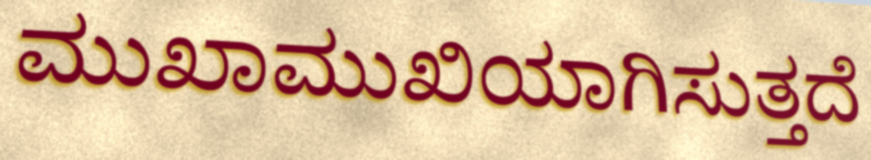
ಮುಖಾಮುಖಿಯಾಗಿಸುತ್ತದೆ